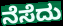
ನೆಸೆದು